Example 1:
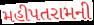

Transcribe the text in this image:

મહીપતરામની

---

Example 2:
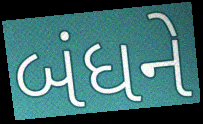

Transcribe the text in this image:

બંધને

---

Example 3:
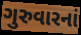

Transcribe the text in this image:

ગુરુવારનાં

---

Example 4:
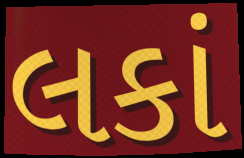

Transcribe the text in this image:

લકાં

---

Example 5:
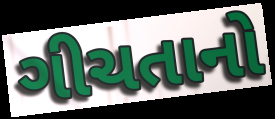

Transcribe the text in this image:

ગીચતાનો